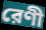
রেণী